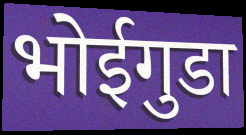
भोईगुडा